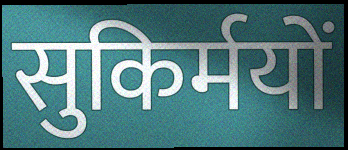
सुकिर्मयों